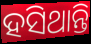
ହସିଥାନ୍ତି